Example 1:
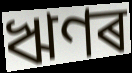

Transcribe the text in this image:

ঋণৰ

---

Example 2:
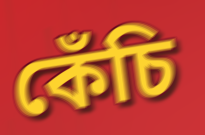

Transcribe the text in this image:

কেঁচি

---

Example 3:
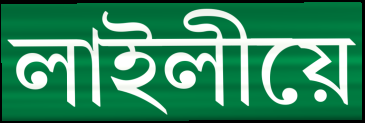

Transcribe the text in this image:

লাইলীয়ে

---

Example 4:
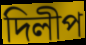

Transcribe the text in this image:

দিলীপ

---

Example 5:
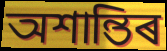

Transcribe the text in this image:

অশান্তিৰ